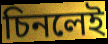
চিনলেই